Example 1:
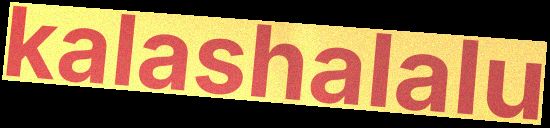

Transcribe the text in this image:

kalashalalu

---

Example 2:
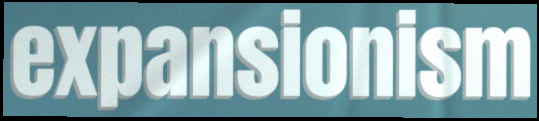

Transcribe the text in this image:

expansionism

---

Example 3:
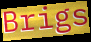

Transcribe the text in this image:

Brigs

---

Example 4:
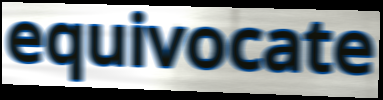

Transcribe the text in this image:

equivocate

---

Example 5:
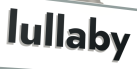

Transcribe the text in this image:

lullaby